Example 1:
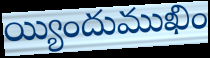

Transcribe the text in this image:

య్యిందుముఖిం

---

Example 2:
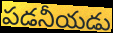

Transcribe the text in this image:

పడనీయడు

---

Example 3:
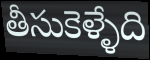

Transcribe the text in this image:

తీసుకెళ్ళేది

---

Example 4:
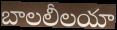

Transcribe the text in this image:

బాలలీలయా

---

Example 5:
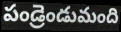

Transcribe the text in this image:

పండ్రెండుమంది